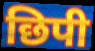
छिपी